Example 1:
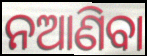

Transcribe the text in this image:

ନଆଣିବା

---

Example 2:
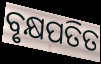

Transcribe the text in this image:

ବୃକ୍ଷପତିତ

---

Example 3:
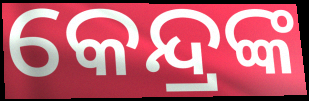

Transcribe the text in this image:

କେନ୍ଦ୍ରଙ୍କ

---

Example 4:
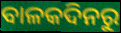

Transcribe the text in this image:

ବାଳକଦିନରୁ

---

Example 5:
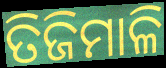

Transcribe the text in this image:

ତିଜିମାଳି